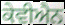
ਕੇਵੀਐਨ